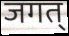
जगत्